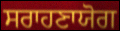
ਸਰਾਹਣਾਯੋਗ